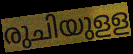
രുചിയുളള